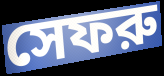
সেফরু